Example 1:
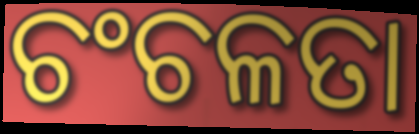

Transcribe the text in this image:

ଚଂଚଳତା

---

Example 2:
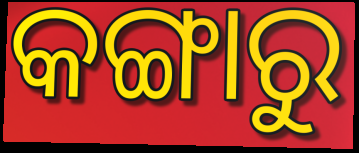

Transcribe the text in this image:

କଙ୍ଗାରୁ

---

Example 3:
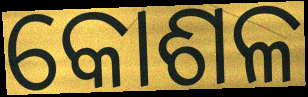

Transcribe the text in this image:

କୋଶଳ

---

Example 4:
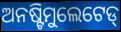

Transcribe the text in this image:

ଅନଷ୍ଟିମୁଲେଟେଡ୍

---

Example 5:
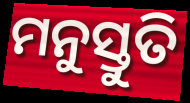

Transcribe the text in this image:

ମନୁସ୍ତୁତି